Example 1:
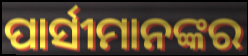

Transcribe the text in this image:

ପାର୍ସୀମାନଙ୍କର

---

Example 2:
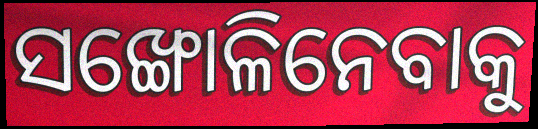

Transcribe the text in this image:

ସଙ୍ଖୋଳିନେବାକୁ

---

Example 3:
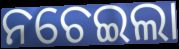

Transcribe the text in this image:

ନଚେଇଲା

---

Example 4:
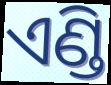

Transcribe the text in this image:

ଏଣ୍ଡି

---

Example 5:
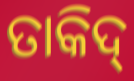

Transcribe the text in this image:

ତାକିଦ୍